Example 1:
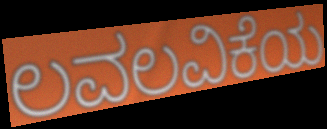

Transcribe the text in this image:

ಲವಲವಿಕೆಯ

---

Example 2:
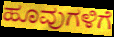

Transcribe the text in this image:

ಹೂವುಗಳಿಗೆ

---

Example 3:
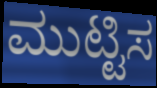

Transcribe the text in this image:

ಮುಟ್ಟಿಸ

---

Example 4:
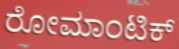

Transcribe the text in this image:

ರೋಮಾಂಟಿಕ್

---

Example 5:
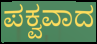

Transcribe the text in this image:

ಪಕ್ವವಾದ